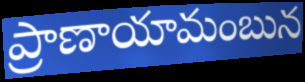
ప్రాణాయామంబున